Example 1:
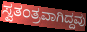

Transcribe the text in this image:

ಸ್ವತಂತ್ರವಾಗಿದ್ದವು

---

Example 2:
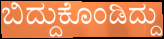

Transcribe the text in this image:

ಬಿದ್ದುಕೊಂಡಿದ್ದು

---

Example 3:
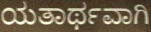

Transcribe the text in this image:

ಯತಾರ್ಥವಾಗಿ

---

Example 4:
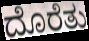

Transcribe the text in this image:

ದೊರೆತು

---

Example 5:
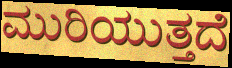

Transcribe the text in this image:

ಮುರಿಯುತ್ತದೆ